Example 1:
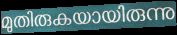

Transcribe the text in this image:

മുതിരുകയായിരുന്നു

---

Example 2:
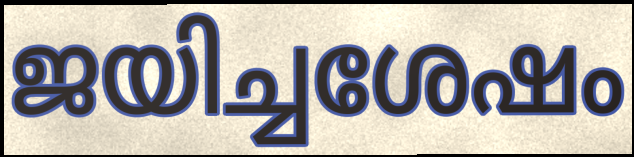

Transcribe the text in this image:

ജയിച്ചശേഷം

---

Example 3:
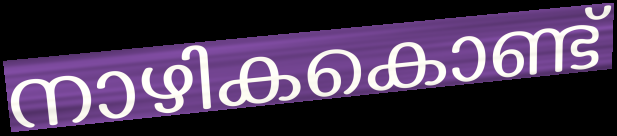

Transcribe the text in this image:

നാഴികകൊണ്ട്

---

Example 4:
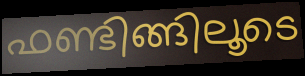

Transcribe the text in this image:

ഫണ്ടിങ്ങിലൂടെ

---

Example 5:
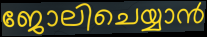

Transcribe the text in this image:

ജോലിചെയ്യാൻ